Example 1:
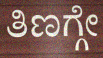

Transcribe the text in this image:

ತಿಣಗ್ಗೇ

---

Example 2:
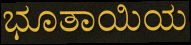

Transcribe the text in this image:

ಭೂತಾಯಿಯ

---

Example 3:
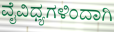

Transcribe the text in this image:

ವೈವಿಧ್ಯಗಳಿಂದಾಗಿ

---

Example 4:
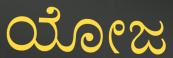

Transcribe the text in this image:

ಯೋಜ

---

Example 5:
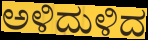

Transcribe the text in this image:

ಅಳಿದುಳಿದ